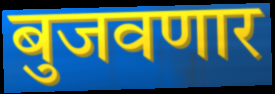
बुजवणार